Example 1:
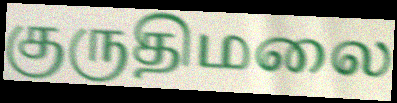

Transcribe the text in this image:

குருதிமலை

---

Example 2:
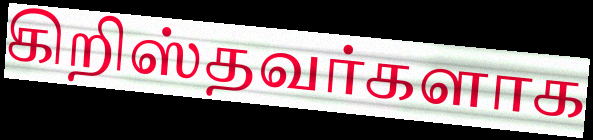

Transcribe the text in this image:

கிறிஸ்தவர்களாக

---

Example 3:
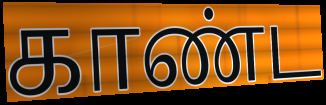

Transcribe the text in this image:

காண்ட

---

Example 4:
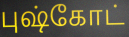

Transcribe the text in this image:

புஷ்கோட்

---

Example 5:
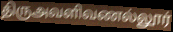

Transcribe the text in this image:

திருஅவளிவணல்லூர்